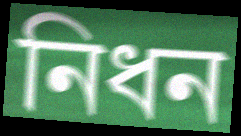
নিধন